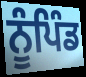
ਨੂੰਪਿੰਡ